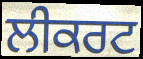
ਲੀਕਰਟ